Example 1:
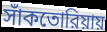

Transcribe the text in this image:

সাঁকতোরিয়ায়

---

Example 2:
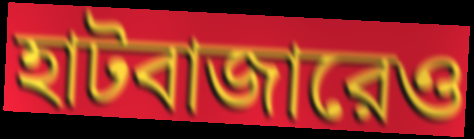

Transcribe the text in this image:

হাটবাজারেও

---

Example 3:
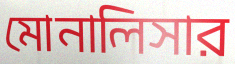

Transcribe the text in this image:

মোনালিসার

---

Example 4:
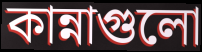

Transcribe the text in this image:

কান্নাগুলো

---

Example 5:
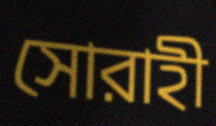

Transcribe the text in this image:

সোরাহী